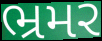
ભ્રમર